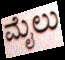
ಮೈಲು